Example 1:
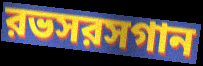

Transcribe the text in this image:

রভসরসগান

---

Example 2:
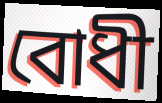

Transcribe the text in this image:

বোধী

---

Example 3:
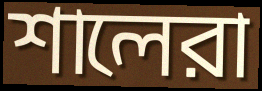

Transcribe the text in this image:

শালেরা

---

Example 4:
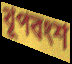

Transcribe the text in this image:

থূপবংশ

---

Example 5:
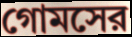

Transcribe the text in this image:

গোমসের